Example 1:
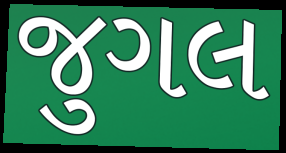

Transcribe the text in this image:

જુગલ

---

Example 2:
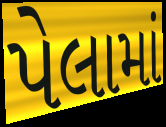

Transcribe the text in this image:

પેલામાં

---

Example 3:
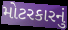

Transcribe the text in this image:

મોટરકારનું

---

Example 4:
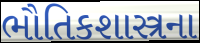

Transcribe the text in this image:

ભૌતિકશાસ્ત્રના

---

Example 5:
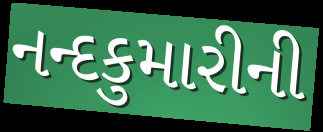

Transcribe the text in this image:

નન્દકુમારીની